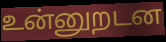
உன்னுறடன